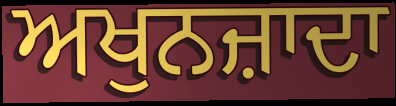
ਅਖੁਨਜ਼ਾਦਾ